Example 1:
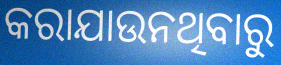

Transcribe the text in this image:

କରାଯାଉନଥିବାରୁ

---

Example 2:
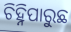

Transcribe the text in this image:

ଚିହ୍ନିପାରୁଛ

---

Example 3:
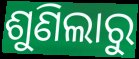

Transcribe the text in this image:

ଶୁଣିଲାରୁ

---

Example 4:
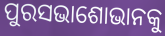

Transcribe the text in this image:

ପୁରସଭାଶୋଭାନକୁ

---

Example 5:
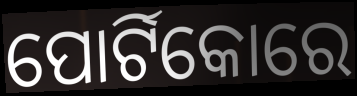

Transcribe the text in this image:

ପୋର୍ଟିକୋରେ